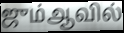
ஜும்ஆவில்